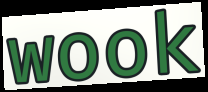
wook